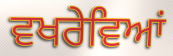
ਵਖਰੇਵਿਆਂ